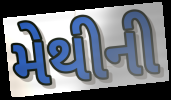
મેથીની